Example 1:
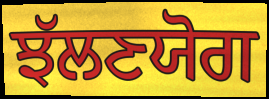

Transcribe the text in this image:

ਝੱਲਣਯੋਗ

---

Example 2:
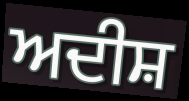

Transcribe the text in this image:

ਅਦੀਸ਼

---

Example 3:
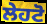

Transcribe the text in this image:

ਲੇਹਟੋ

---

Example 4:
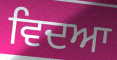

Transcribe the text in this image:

ਵਿਦਆ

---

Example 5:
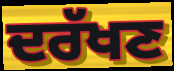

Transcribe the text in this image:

ਦਰੱਖਣ